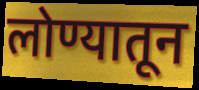
लोण्यातून